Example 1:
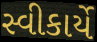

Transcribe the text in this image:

સ્વીકાર્યે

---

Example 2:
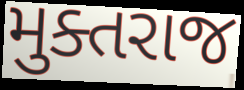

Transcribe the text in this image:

મુક્તરાજ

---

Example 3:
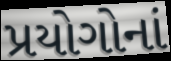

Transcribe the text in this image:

પ્રયોગોનાં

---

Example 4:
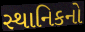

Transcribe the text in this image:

સ્થાનિકનો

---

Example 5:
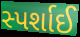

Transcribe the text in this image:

સ્પર્શાઈ